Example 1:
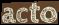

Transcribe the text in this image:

acto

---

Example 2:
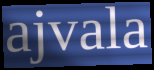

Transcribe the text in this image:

ajvala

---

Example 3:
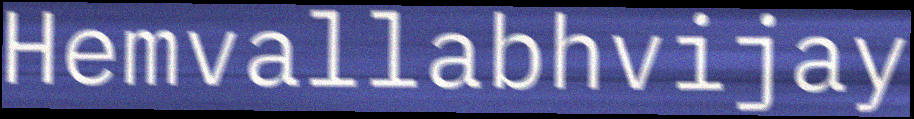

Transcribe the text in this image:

Hemvallabhvijay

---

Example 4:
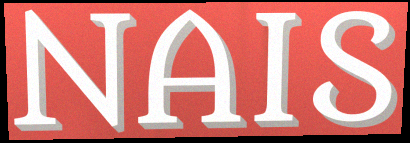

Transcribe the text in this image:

NAIS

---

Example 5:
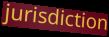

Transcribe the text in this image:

jurisdiction